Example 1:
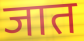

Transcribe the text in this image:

जात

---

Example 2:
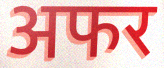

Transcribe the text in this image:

अफर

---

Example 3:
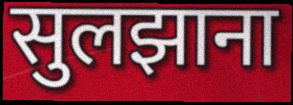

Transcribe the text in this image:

सुलझाना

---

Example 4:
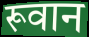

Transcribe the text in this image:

रूवान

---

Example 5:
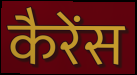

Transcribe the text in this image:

कैरेंस